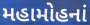
મહામોહનાં